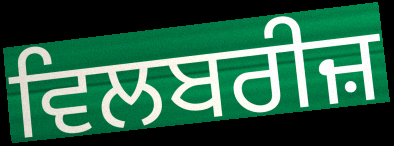
ਵਿਲਬਰੀਜ਼